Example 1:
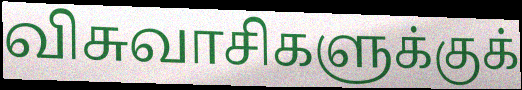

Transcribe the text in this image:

விசுவாசிகளுக்குக்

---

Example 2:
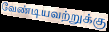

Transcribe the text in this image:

வேண்டியவற்றுக்கு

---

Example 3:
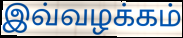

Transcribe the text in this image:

இவ்வழக்கம்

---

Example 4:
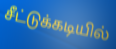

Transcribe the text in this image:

சீட்டுக்கடியில்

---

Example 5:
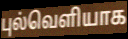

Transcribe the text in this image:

புல்வெளியாக